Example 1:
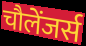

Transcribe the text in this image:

चौलेंजर्स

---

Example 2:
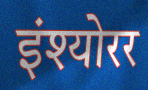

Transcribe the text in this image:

इंश्योरर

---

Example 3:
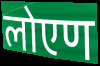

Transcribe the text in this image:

लोएण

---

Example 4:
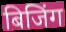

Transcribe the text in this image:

बिजिंग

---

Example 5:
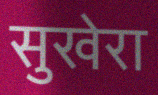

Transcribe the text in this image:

सुखेरा